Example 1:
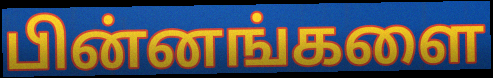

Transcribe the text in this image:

பின்னங்களை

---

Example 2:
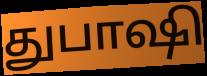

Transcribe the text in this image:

துபாஷி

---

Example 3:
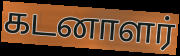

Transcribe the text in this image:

கடனாளர்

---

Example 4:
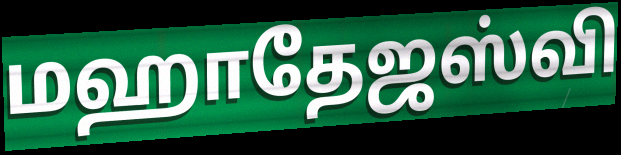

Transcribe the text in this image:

மஹாதேஜஸ்வி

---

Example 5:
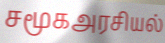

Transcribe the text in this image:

சமூகஅரசியல்